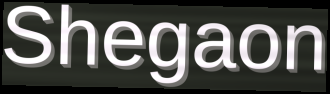
Shegaon